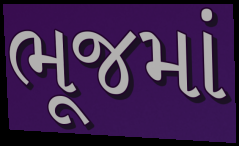
ભૂજમાં